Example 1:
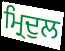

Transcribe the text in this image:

ਮ੍ਰਿਦੁਲ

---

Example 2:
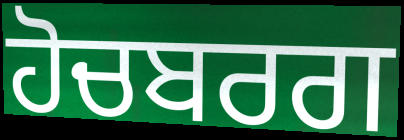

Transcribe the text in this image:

ਹੋਚਬਰਗ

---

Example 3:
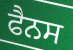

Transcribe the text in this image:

ਫੈਨਸ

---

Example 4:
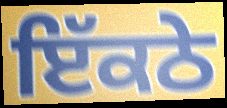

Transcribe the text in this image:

ਇੱਕਠੇ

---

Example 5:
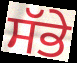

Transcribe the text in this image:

ਸੱਭੇ